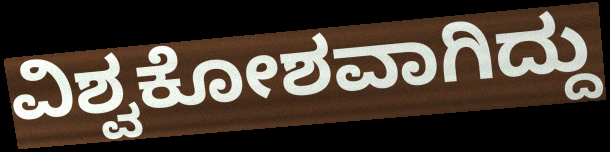
ವಿಶ್ವಕೋಶವಾಗಿದ್ದು